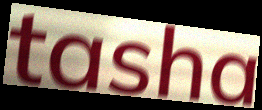
tasha